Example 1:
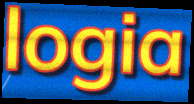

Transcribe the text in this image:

logia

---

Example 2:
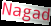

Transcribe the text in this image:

Nagad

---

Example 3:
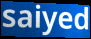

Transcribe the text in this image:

saiyed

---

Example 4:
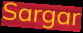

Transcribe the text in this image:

Sargar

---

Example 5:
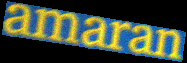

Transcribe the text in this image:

amaran